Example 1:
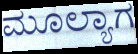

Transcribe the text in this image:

ಮೂಲ್ಯಾಗ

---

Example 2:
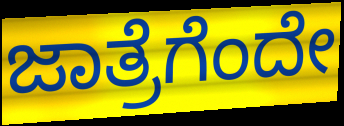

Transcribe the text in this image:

ಜಾತ್ರೆಗೆಂದೇ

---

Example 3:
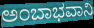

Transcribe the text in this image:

ಅಂಬಾಭವಾನಿ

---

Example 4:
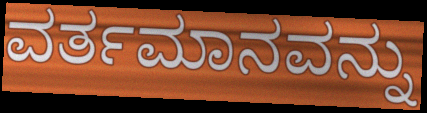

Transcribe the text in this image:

ವರ್ತಮಾನವನ್ನು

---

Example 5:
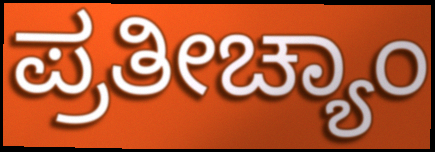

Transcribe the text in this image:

ಪ್ರತೀಚ್ಯಾಂ